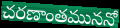
చరణాంతముననో